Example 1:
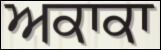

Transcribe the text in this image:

ਅਕਾਕਾ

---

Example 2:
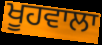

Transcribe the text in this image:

ਖੂਹਵਾਲਾ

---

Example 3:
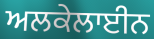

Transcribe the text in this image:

ਅਲਕੇਲਾਈਨ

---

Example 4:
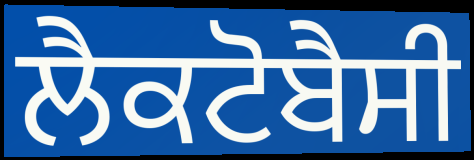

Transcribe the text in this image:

ਲੈਕਟੋਬੈਸੀ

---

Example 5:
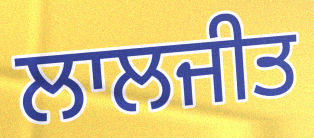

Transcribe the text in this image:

ਲਾਲਜੀਤ